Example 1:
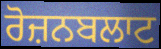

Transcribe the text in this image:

ਰੋਜ਼ਨਬਲਾਟ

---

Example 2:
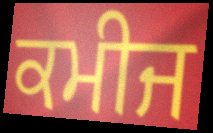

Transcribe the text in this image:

ਕਮੀਜ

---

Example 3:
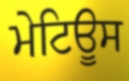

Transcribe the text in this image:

ਮੇਟਿਊਸ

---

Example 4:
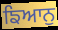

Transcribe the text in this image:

ਙਿਆਨੁ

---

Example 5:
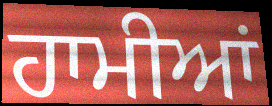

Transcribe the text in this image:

ਹਾਮੀਆਂ